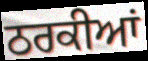
ਠਰਕੀਆਂ